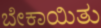
ಬೇಕಾಯಿತು